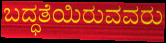
ಬದ್ಧತೆಯಿರುವವರು